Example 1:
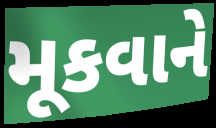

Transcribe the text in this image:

મૂકવાને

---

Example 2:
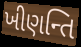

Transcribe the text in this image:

ખીણન્તિ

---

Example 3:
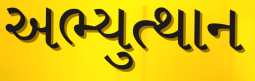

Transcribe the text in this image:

અભ્યુત્થાન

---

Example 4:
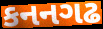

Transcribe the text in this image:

કનનગઢ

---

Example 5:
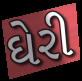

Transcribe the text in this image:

ઘેરી